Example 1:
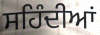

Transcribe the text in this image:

ਸਹਿੰਦੀਆਂ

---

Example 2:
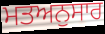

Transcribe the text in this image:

ਮਤਅਨੁਸਾਰ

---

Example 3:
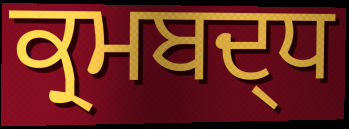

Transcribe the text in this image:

ਕ੍ਰਮਬਦ੍ਧ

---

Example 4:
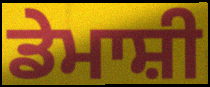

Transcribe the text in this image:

ਡੇਮਾਸ਼ੀ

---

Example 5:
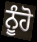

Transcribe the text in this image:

ਨੂੰਹੋ